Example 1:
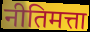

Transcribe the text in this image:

नीतिमत्ता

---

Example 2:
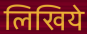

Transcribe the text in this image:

लिखिये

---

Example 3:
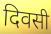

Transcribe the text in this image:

दिवसी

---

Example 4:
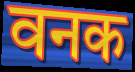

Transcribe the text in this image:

वनक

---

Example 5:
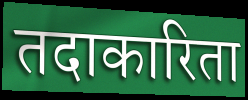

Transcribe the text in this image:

तदाकारिता